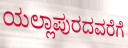
ಯಲ್ಲಾಪುರದವರೆಗೆ